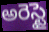
అరెస్టై